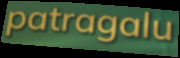
patragalu